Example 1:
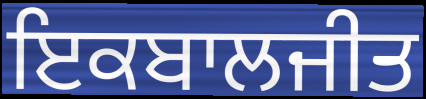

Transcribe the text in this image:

ਇਕਬਾਲਜੀਤ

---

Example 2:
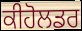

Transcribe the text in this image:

ਕੀਹੋਲਡਰ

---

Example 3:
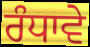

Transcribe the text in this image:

ਰੰਧਾਵੇ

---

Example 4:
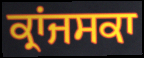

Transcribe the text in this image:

ਕ੍ਰਾਂਜਸਕਾ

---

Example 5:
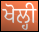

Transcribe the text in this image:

ਖੋਲ੍ਹੀ